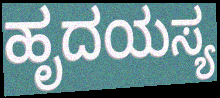
ಹೃದಯಸ್ಯ